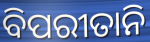
ବିପରୀତାନି